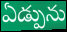
ఏడ్పును